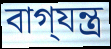
বাগ্‌যন্ত্র